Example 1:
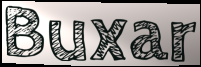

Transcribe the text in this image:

Buxar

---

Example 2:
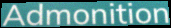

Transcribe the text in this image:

Admonition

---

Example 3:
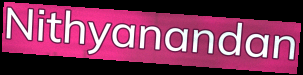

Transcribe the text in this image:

Nithyanandan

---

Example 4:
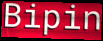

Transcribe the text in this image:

Bipin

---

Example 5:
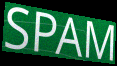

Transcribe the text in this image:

SPAM